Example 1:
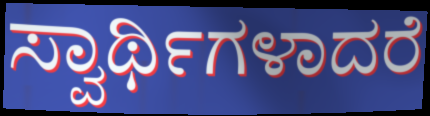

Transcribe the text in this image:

ಸ್ವಾರ್ಥಿಗಳಾದರೆ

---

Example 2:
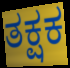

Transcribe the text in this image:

ತಕ್ಷಕ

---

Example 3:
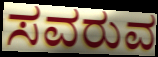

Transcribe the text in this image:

ಸವರುವ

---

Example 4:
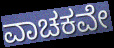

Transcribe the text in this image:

ವಾಚಕವೇ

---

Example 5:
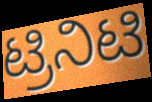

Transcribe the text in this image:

ಟ್ರಿನಿಟಿ